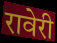
रावेरी